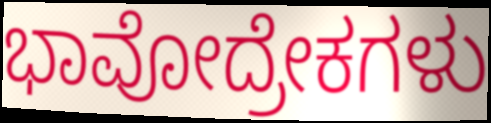
ಭಾವೋದ್ರೇಕಗಳು